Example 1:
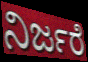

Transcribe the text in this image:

ನಿರ್ಜರೆ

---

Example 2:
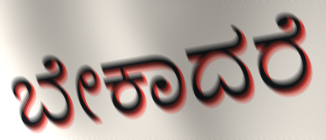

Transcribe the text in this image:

ಬೇಕಾದರೆ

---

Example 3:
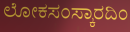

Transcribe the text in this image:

ಲೋಕಸಂಸ್ಕಾರದಿಂ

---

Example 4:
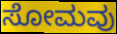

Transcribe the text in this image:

ಸೋಮವು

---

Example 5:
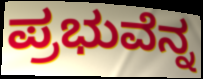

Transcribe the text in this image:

ಪ್ರಭುವೆನ್ನ